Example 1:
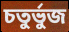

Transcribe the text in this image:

চতুৰ্ভুজ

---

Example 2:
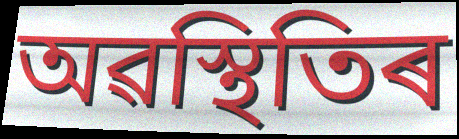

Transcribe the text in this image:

অৱস্থিতিৰ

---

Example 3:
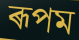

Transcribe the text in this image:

ৰূপম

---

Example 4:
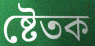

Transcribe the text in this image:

ষ্টেতক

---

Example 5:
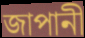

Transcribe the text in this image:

জাপানী